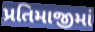
પ્રતિમાજીમાં